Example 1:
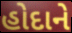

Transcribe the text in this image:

હોદાને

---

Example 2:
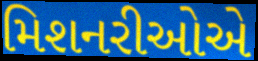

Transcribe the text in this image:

મિશનરીઓએ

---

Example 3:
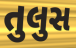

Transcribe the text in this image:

તુલુસ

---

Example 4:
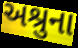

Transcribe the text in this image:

અશ્રુના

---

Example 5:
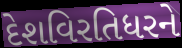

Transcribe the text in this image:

દેશવિરતિધરને